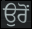
ਉਰੋਂ